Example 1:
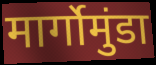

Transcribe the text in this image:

मार्गोमुंडा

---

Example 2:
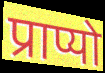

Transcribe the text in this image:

प्राप्यो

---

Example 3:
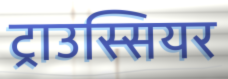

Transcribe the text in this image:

ट्राउस्सियर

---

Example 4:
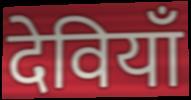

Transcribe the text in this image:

देवियाँ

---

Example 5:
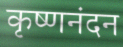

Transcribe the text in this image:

कृष्णनंदन